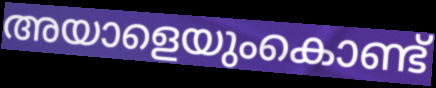
അയാളെയുംകൊണ്ട്